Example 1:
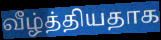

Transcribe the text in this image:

வீழ்த்தியதாக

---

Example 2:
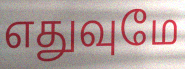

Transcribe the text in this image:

எதுவுமே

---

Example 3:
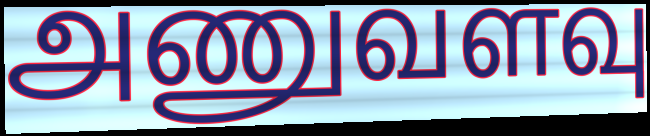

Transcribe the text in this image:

அணுவளவு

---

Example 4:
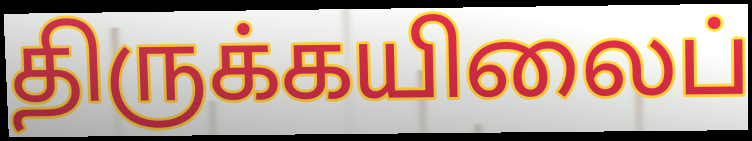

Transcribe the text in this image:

திருக்கயிலைப்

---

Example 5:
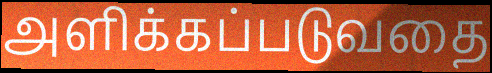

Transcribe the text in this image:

அளிக்கப்படுவதை